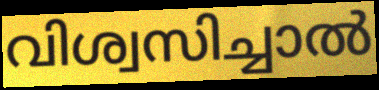
വിശ്വസിച്ചാൽ